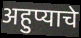
अहुप्याचे